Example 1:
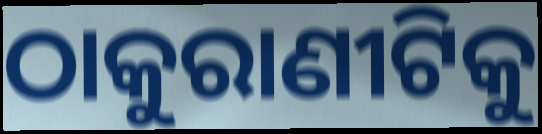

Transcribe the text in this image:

ଠାକୁରାଣୀଟିକୁ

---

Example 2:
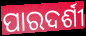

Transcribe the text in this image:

ପାରଦର୍ଶୀ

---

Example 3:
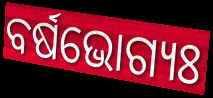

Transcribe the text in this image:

ବର୍ଷଭୋଗ୍ୟଃ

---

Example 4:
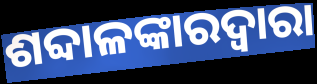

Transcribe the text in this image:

ଶବ୍ଦାଳଙ୍କାରଦ୍ୱାରା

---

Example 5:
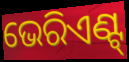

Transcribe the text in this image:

ଭେରିଏଣ୍ଟ୍